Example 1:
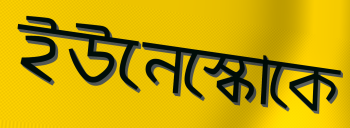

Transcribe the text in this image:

ইউনেস্কোকে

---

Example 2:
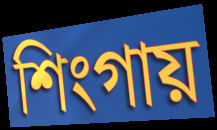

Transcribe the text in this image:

শিংগায়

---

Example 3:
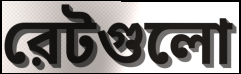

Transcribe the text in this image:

রেটগুলো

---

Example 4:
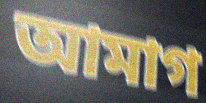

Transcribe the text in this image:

আমাগ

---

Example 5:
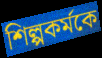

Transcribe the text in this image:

শিল্পকর্মকে